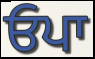
ਓਪਾ